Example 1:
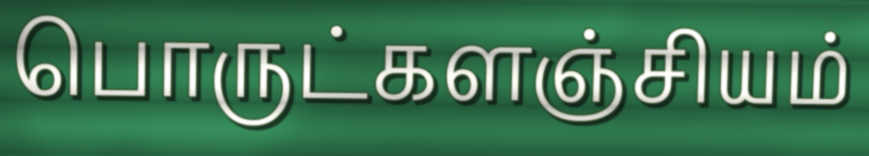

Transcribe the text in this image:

பொருட்களஞ்சியம்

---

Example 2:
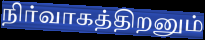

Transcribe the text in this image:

நிர்வாகத்திறனும்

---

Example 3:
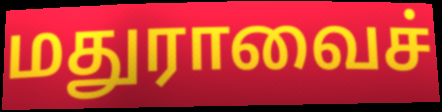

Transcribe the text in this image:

மதுராவைச்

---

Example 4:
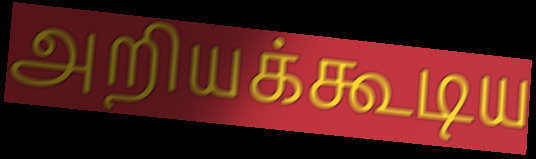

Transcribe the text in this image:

அறியக்கூடிய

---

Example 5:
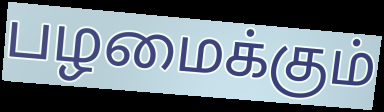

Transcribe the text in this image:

பழமைக்கும்